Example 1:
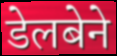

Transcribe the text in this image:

डेलबेने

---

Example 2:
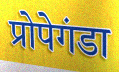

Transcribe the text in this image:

प्रोपेगंडा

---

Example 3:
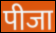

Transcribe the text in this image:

पीजा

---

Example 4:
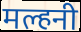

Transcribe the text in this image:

मल्हनी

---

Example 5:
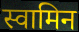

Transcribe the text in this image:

स्वामिन